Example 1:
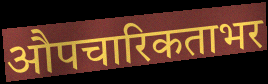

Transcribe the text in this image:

औपचारिकताभर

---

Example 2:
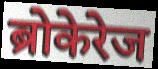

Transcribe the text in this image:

ब्रोकेरेज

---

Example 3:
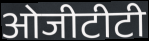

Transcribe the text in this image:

ओजीटीटी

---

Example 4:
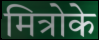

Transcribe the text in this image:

मित्रोके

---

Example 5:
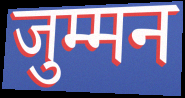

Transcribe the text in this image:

जुम्मन